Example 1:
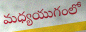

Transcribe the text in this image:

మధ్యయుగంలో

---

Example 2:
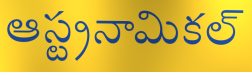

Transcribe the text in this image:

ఆస్ట్రనామికల్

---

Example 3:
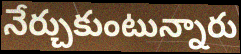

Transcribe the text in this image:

నేర్చుకుంటున్నారు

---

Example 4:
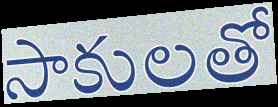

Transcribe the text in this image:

సాకులతో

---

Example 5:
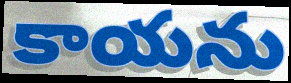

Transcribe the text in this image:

కాయను